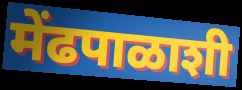
मेंढपाळाशी